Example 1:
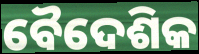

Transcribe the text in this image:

ବୈଦେଶିକ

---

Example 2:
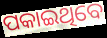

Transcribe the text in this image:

ପକାଇଥିବେ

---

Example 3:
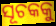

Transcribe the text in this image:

ସୂଚକକୁ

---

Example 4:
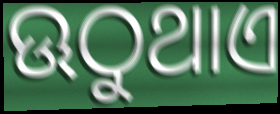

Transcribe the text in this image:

ଊଠୁଥାଏ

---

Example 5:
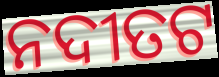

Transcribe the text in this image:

ନଦୀତଟ